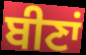
ਬੀਣਾਂ